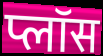
प्लॉस